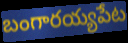
బంగారయ్యపేట